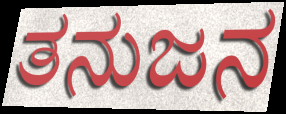
ತನುಜನ